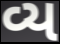
વ્ય